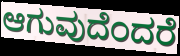
ಆಗುವುದೆಂದರೆ